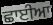
ਛਾਈਆ